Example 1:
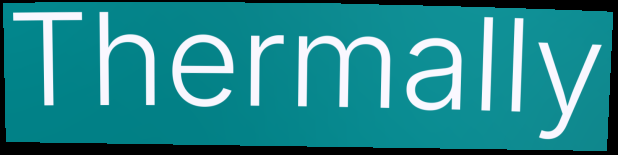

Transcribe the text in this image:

Thermally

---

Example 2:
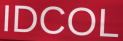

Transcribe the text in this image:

IDCOL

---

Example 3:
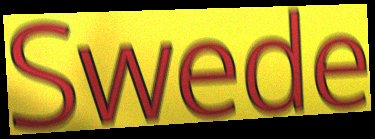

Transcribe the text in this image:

Swede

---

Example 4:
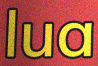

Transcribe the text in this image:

lua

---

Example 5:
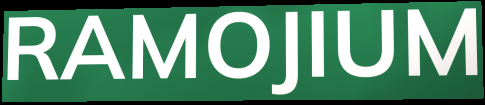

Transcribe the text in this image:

RAMOJIUM